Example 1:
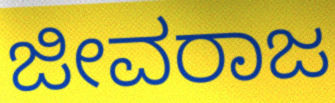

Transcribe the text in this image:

ಜೀವರಾಜ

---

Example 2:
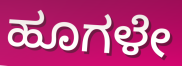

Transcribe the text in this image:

ಹೂಗಳೇ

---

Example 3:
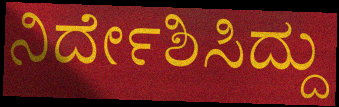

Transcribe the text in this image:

ನಿರ್ದೇಶಿಸಿದ್ದು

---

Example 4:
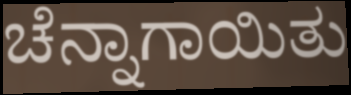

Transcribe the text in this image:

ಚೆನ್ನಾಗಾಯಿತು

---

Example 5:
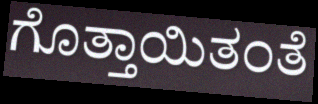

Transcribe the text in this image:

ಗೊತ್ತಾಯಿತಂತೆ